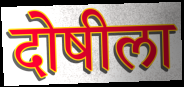
दोषीला